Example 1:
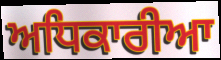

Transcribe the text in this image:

ਅਧਿਕਾਰੀਆ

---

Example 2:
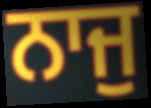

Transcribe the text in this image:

ਨਾਜੁ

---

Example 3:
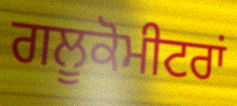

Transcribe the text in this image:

ਗਲੂਕੋਮੀਟਰਾਂ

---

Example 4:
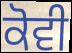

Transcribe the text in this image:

ਕੋਵੀ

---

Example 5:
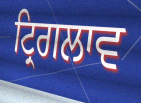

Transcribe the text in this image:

ਟ੍ਰਿਗਲਾਵ